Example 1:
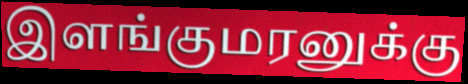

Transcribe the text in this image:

இளங்குமரனுக்கு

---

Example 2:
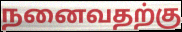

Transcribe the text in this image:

நனைவதற்கு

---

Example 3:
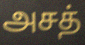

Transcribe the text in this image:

அசத்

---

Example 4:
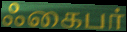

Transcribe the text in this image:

ஃகைபர்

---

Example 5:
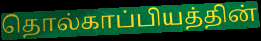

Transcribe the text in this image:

தொல்காப்பியத்தின்